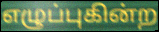
எழுப்புகின்ற